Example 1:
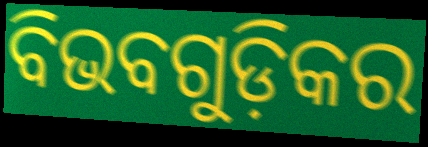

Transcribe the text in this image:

ବିଭବଗୁଡ଼ିକର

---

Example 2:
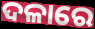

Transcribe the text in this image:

ଦଳାରେ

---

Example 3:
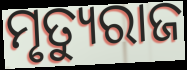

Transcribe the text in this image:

ମୃତ୍ୟୁରାଜ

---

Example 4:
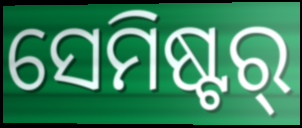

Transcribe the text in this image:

ସେମିଷ୍ଟର୍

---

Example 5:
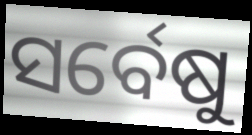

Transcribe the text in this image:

ସର୍ବେଷୁ